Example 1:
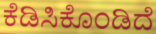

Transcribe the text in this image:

ಕೆಡಿಸಿಕೊಂಡಿದೆ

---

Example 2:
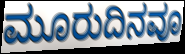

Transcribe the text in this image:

ಮೂರುದಿನವೂ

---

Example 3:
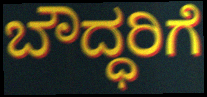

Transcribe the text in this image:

ಬೌದ್ಧರಿಗೆ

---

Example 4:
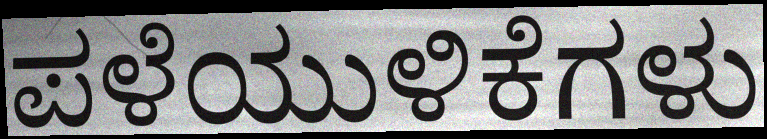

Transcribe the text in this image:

ಪಳೆಯುಳಿಕೆಗಳು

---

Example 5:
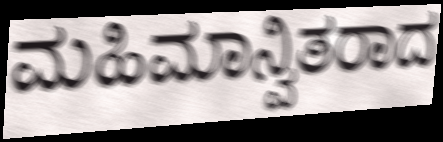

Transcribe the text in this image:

ಮಹಿಮಾನ್ವಿತರಾದ